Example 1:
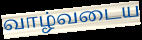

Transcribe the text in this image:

வாழ்வடைய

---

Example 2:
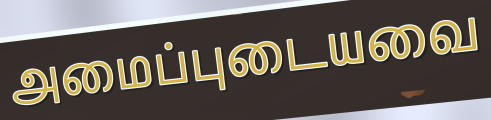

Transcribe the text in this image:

அமைப்புடையவை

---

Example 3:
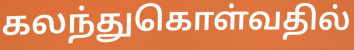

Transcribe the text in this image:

கலந்துகொள்வதில்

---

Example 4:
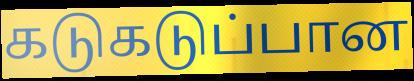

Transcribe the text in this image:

கடுகடுப்பான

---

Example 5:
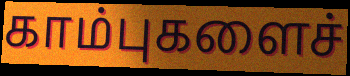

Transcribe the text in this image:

காம்புகளைச்